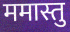
ममास्तु